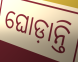
ଘୋଡ଼ାନ୍ତି